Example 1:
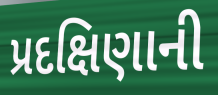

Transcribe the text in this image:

પ્રદક્ષિણાની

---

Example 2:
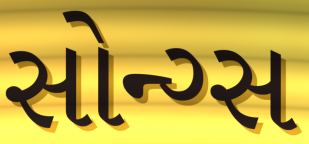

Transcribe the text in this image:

સોન્ગ્સ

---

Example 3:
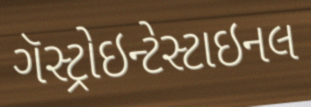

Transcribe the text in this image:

ગૅસ્ટ્રોઇન્ટેસ્ટાઇનલ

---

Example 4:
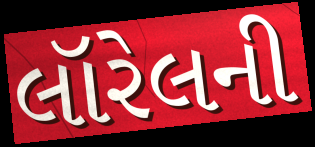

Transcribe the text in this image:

લૉરેલની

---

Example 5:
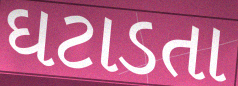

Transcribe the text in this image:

ઘટાડતા